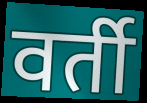
वर्ती